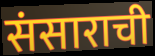
संसाराची